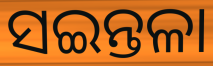
ସଇନ୍ତଳା